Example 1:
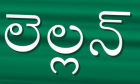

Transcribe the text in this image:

లెల్లన్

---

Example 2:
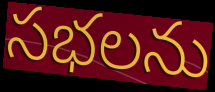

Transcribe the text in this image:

సభలను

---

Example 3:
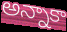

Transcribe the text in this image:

అన్నాకా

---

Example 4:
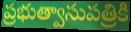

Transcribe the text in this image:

ప్రభుత్వాసుపత్రికి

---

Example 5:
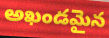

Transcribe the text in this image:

అఖండమైన